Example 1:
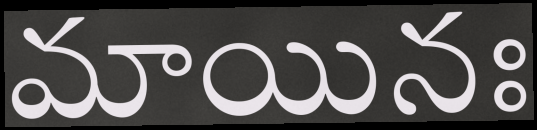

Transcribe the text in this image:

మాయినః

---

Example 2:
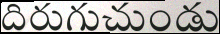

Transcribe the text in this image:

దిరుగుచుండు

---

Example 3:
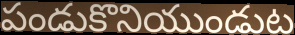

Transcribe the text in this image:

పండుకొనియుండుట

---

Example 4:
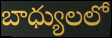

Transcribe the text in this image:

బాధ్యులలో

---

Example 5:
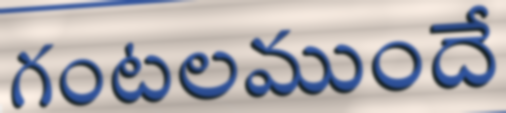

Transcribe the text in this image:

గంటలముందే